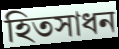
হিতসাধন